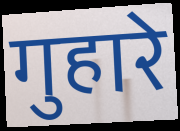
गुहारे